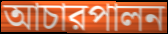
আচারপালন